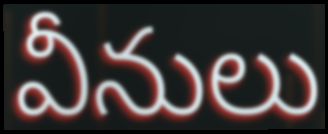
వీనులు